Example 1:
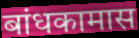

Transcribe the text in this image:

बांधकामास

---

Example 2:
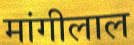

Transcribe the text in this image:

मांगीलाल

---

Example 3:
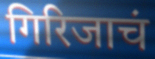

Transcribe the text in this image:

गिरिजाचं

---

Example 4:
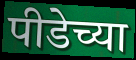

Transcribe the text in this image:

पीडेच्या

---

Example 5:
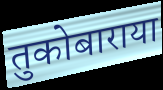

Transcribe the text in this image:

तुकोबाराया